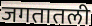
जगतातली